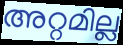
അറ്റമില്ല